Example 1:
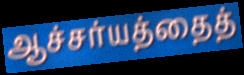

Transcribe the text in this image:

ஆச்சர்யத்தைத்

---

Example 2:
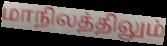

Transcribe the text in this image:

மாநிலத்திலும்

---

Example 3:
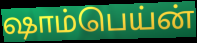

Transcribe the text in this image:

ஷாம்பெய்ன்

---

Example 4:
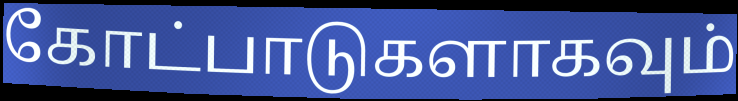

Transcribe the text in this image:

கோட்பாடுகளாகவும்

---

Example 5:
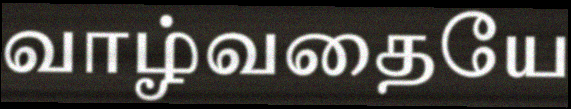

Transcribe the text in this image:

வாழ்வதையே